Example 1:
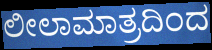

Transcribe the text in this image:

ಲೀಲಾಮಾತ್ರದಿಂದ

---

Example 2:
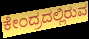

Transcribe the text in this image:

ಕೇಂದ್ರದಲ್ಲಿರುವ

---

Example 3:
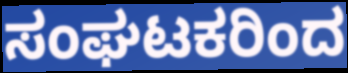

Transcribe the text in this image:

ಸಂಘಟಕರಿಂದ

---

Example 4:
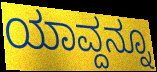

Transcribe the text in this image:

ಯಾವ್ದನ್ನೂ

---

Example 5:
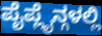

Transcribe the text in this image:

ಪೈಪ್ಲೈನ್ಗಳಲ್ಲಿ